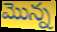
మొన్న